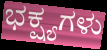
ಭಕ್ಷ್ಯಗಳು